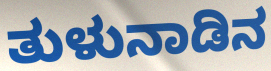
ತುಳುನಾಡಿನ